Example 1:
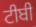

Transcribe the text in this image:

ਟੀਬੀ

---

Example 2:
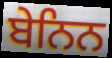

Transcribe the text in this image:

ਬੇਨਿਨ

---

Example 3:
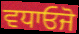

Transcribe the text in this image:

ਵਧਾਓਜੋ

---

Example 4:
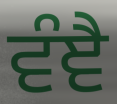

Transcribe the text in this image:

ਵੰਞੈ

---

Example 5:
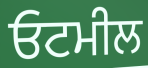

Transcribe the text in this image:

ਓਟਮੀਲ